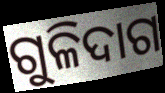
ଗୁଳିଦାଗ